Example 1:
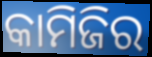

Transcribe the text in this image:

କାମିଜିର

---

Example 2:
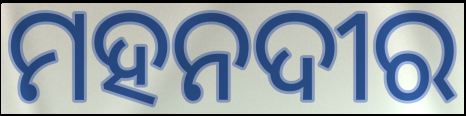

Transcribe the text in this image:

ମହନଦୀର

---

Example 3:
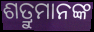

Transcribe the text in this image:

ଶତ୍ରୁମାନଙ୍କ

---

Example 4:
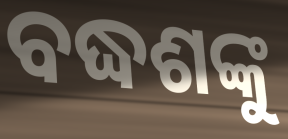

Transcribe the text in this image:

ବଦ୍ଧଶଙ୍କୁ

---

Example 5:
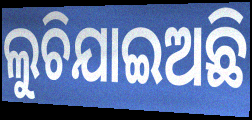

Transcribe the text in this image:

ଲୁଚିଯାଇଅଛି